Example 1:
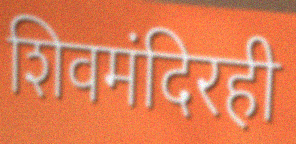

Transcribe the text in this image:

शिवमंदिरही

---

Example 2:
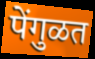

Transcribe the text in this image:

पेंगुळत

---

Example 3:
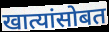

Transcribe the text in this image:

खात्यांसोबत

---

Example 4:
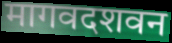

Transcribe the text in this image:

मागवदशवन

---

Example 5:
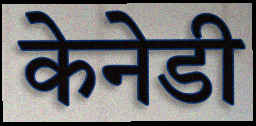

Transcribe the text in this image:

केनेडी